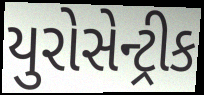
યુરોસેન્ટ્રીક